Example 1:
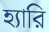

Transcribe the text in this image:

হ্যারি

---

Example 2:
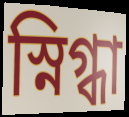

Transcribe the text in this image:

স্নিগ্ধা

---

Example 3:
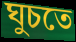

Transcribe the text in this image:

ঘুচতে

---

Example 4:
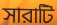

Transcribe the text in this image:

সারাটি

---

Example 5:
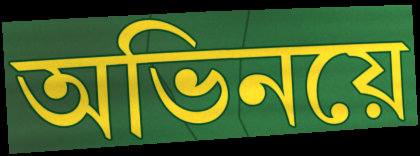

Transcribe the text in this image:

অভিনয়ে